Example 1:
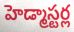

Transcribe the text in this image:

హెడ్మాస్టర్ల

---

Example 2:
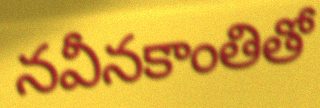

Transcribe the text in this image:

నవీనకాంతితో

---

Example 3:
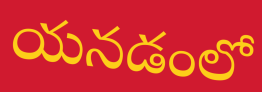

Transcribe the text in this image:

యనడంలో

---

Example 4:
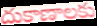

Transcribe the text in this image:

దుకాణాలకు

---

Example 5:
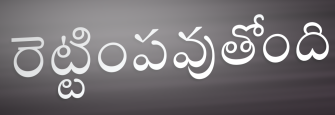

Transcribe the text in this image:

రెట్టింపవుతోంది